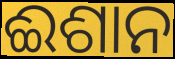
ଈଶାନ